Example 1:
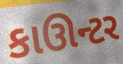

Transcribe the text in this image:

કાઊન્ટર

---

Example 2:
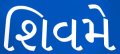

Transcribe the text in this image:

શિવમે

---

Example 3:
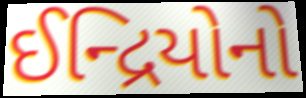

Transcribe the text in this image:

ઈન્દ્રિયોનો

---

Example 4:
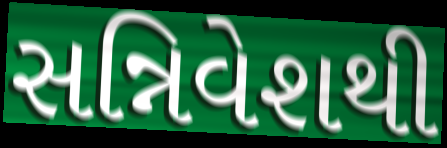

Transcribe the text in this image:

સન્નિવેશથી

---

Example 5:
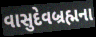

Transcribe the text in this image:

વાસુદેવબ્રહ્મના